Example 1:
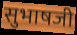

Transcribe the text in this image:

सुभाषजी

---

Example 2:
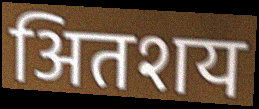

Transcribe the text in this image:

अितशय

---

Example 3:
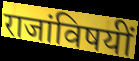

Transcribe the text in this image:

राजांविषयीं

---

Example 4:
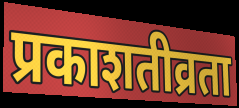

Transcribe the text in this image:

प्रकाशतीव्रता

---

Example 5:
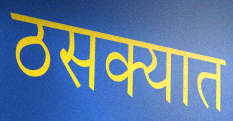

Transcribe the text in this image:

ठसक्यात